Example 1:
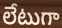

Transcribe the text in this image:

లేటుగా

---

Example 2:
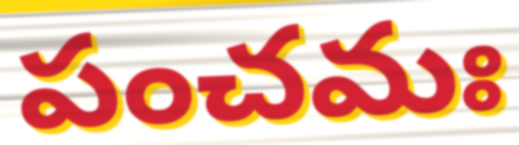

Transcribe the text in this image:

పంచమః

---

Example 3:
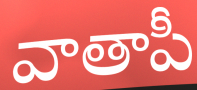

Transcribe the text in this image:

వాతాపీ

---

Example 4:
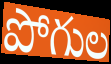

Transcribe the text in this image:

పోగుల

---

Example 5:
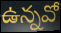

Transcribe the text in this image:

ఉన్నవో